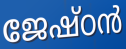
ജേഷ്ഠൻ